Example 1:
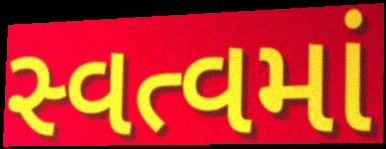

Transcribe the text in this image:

સ્વત્વમાં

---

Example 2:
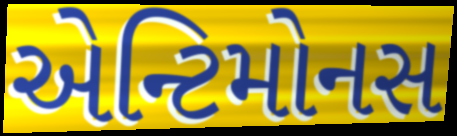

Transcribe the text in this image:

એન્ટિમોનસ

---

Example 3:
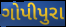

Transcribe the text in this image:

ગોપીપુરા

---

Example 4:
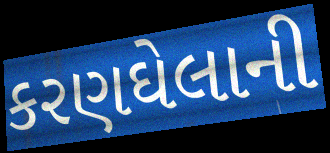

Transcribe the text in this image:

કરણઘેલાની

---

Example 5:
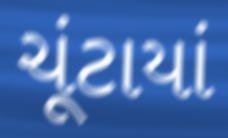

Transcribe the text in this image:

ચૂંટાયાં